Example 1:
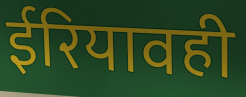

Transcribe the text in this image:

ईरियावही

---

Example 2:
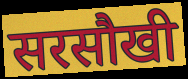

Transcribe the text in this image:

सरसौखी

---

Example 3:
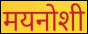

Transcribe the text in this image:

मयनोशी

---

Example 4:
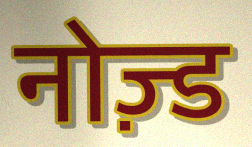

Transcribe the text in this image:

नोज़्ड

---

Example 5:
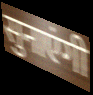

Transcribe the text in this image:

सुनाएंगी